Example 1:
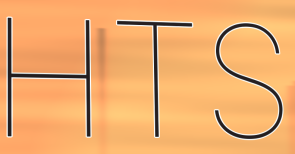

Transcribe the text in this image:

HTS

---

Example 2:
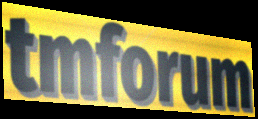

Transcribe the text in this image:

tmforum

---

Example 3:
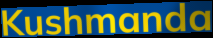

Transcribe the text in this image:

Kushmanda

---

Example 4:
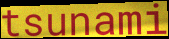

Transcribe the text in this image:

tsunami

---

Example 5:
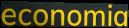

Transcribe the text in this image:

economia